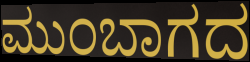
ಮುಂಬಾಗದ